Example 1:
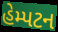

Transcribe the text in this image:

હેમ્પટન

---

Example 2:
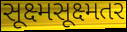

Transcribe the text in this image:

સૂક્ષ્મસૂક્ષ્મતર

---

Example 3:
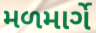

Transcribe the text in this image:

મળમાર્ગે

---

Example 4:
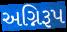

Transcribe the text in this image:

અગ્નિરૂપ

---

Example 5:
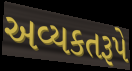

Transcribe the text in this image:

અવ્યકતરૂપે